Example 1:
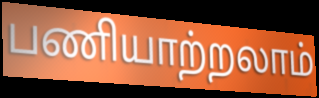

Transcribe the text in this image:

பணியாற்றலாம்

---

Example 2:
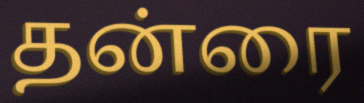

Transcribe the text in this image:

தன்ரை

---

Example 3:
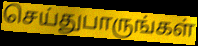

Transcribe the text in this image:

செய்துபாருங்கள்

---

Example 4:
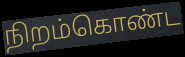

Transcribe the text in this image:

நிறம்கொண்ட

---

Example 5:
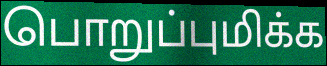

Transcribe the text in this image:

பொறுப்புமிக்க